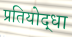
प्रतियोद्धा